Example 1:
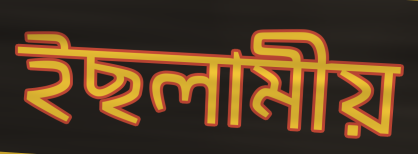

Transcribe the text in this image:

ইছলামীয়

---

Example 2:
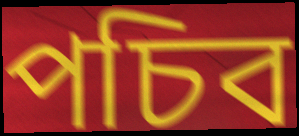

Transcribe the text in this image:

পচিব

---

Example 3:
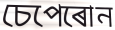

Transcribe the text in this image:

চেপেৰোন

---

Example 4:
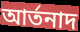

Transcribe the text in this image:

আৰ্তনাদ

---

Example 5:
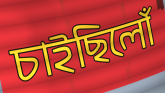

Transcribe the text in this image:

চাইছিলোঁ